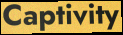
Captivity